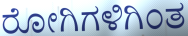
ರೋಗಿಗಳಿಗಿಂತ